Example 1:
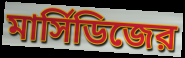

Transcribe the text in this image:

মার্সিডিজের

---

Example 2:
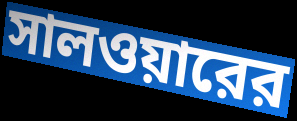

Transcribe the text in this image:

সালওয়ারের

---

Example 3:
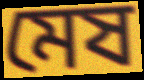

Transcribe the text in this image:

মেষ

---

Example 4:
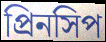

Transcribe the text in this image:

প্রিনসিপ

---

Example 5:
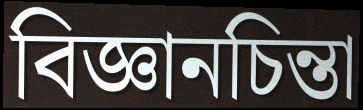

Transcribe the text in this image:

বিজ্ঞানচিন্তা